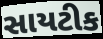
સાયટીક